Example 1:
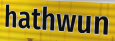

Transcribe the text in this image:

hathwun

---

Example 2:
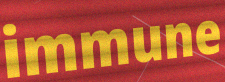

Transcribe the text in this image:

immune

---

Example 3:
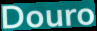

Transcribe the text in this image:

Douro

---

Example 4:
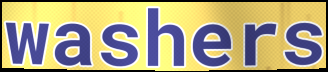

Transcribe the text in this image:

washers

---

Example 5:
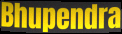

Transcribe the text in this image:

Bhupendra